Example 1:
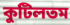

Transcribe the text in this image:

কুটিলতম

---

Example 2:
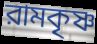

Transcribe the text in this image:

রামকৃষ্ণ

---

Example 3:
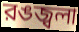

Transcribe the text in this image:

রঙজ্বলা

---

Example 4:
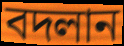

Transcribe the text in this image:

বদলান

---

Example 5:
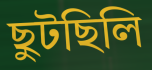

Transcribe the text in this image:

ছুটছিলি